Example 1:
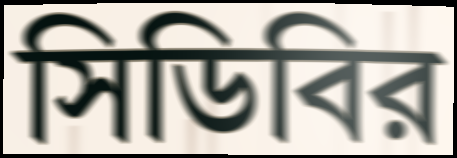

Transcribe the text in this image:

সিডিবির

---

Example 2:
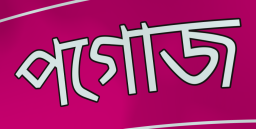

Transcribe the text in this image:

পগোজ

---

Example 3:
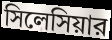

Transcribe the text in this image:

সিলেসিয়ার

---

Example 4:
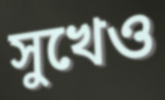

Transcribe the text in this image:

সুখেও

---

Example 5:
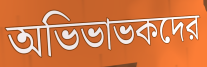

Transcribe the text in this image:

অভিভাভকদের